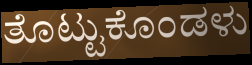
ತೊಟ್ಟುಕೊಂಡಳು